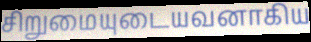
சிறுமையுடையவனாகிய